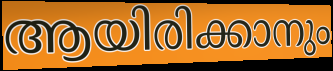
ആയിരിക്കാനും